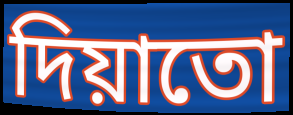
দিয়াতো